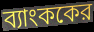
ব্যাংককের